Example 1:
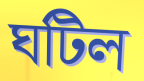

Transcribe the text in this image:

ঘটিল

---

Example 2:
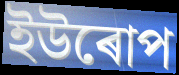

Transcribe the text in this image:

ইউৰোপ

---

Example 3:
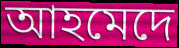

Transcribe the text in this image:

আহমেদে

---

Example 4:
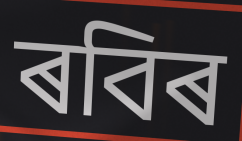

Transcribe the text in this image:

ৰবিৰ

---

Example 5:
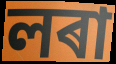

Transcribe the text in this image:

লৰা